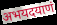
अभयदयाणं